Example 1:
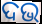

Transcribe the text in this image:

ଦଭ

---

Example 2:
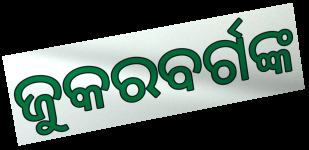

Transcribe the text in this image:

ଜୁକରବର୍ଗଙ୍କ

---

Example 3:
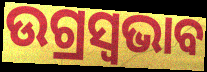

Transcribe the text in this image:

ଉଗ୍ରସ୍ୱଭାବ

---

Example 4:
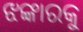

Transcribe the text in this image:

ଝଙ୍କାରକୁ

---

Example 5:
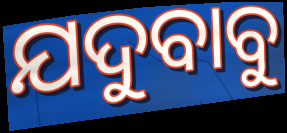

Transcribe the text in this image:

ଯଦୁବାବୁ